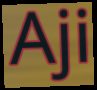
Aji